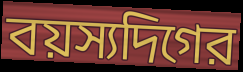
বয়স্যদিগের